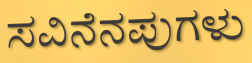
ಸವಿನೆನಪುಗಳು